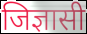
जिज्ञासी